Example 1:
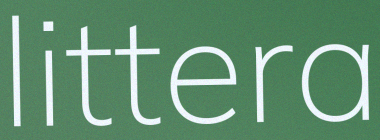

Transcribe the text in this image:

littera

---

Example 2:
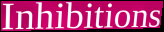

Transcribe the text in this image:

Inhibitions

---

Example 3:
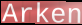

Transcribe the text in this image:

Arken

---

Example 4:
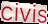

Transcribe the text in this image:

civis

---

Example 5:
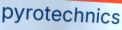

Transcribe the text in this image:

pyrotechnics